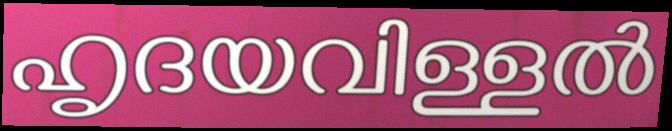
ഹൃദയവിള്ളൽ